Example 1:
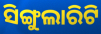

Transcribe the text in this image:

ସିଙ୍ଗୁଲାରିଟି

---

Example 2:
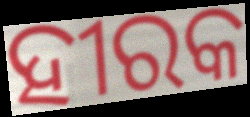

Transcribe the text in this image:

ହୀରକ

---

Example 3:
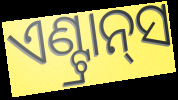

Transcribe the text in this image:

ଏଣ୍ଟ୍ରାନ୍‍ସ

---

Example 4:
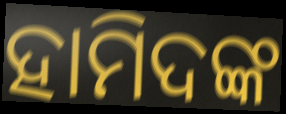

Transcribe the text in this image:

ହାମିଦଙ୍କ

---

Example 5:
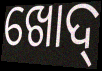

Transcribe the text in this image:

ଖୋଦ୍